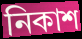
নিকাশ